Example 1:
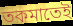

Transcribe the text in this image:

তকমাতেই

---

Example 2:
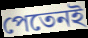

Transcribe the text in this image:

পেতেনই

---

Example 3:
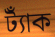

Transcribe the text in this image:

ট্যাঁক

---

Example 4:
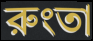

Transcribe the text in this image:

রুংতা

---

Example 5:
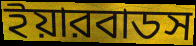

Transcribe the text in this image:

ইয়ারবাডস